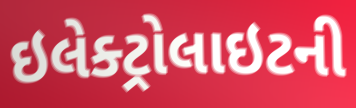
ઇલેક્ટ્રોલાઇટની